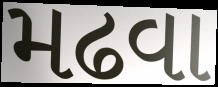
મઢવા